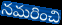
నమరించి